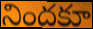
నిందకూ